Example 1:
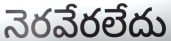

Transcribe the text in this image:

నెరవేరలేదు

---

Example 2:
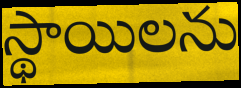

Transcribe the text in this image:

స్థాయిలను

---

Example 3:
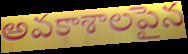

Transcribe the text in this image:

అవకాశాలపైన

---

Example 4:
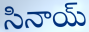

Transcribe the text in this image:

సినాయ్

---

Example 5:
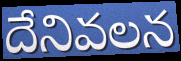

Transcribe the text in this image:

దేనివలన